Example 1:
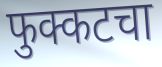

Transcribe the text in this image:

फुक्कटचा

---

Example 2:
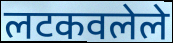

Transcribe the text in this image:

लटकवलेले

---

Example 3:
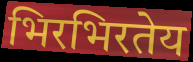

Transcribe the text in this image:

भिरभिरतेय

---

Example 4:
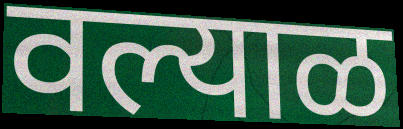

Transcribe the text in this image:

वल्याळ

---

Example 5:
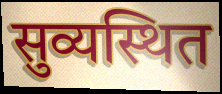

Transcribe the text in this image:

सुव्यस्थित